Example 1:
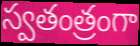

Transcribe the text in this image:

స్వతంత్రంగా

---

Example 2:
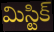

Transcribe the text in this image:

మిస్టిక్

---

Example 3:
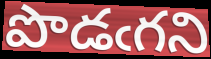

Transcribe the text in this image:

పొడఁగని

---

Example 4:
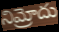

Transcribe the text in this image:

నిమ్రోదు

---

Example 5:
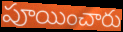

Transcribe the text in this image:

పూయించారు